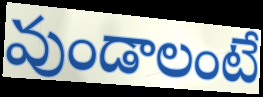
వుండాలంటే